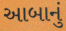
આબાનું